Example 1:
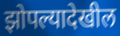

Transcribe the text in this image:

झोपल्यादेखील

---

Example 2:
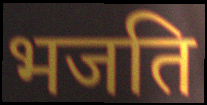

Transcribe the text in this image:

भजति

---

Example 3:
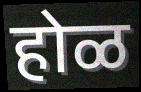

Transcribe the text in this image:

होळ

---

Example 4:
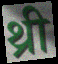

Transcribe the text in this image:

थ्री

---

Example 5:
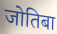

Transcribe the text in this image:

जोतिबा